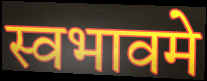
स्वभावमे